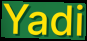
Yadi